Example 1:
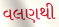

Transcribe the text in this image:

વલણથી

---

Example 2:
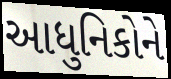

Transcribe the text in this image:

આધુનિકોને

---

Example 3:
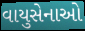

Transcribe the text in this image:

વાયુસેનાઓ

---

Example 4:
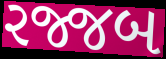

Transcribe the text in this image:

રજ્જબ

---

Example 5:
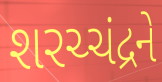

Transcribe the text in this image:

શરચ્ચંદ્રને